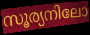
സൂര്യനിലോ